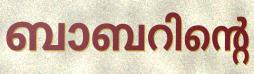
ബാബറിന്റെ